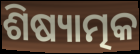
ଶିଷ୍ୟାତ୍ମକ